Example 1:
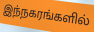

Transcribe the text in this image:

இந்நகரங்களில்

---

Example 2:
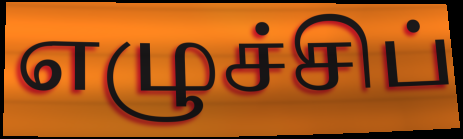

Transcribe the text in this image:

எழுச்சிப்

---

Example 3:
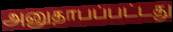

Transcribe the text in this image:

அனுதாபப்பட்டது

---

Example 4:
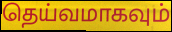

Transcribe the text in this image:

தெய்வமாகவும்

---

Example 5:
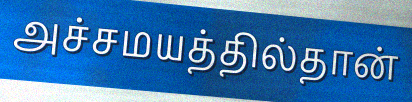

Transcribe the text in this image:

அச்சமயத்தில்தான்